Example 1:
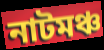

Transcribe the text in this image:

নাটমঞ্চ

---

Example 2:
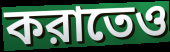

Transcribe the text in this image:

করাতেও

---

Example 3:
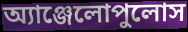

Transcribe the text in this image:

অ্যাঞ্জেলোপুলোস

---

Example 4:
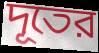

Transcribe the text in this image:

দূতের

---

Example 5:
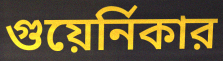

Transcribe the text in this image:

গুয়ের্নিকার